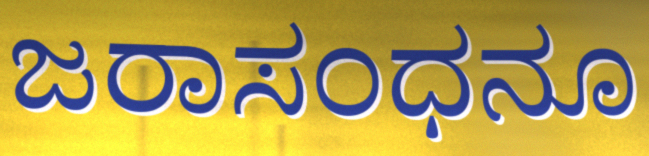
ಜರಾಸಂಧನೂ